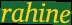
rahine